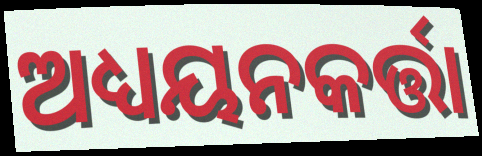
ଅଧ୍ୟୟନକର୍ତ୍ତା